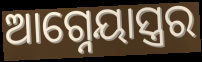
ଆଗ୍ନେୟାସ୍ତ୍ରର